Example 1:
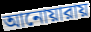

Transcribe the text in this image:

আনোয়ারায়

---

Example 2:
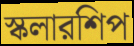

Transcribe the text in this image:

স্কলারশিপ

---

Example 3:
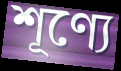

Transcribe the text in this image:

শূণ্যে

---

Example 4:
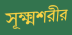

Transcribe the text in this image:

সূক্ষ্মশরীর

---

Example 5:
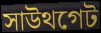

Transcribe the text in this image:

সাউথগেট